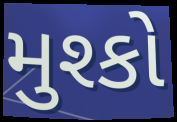
મુશ્કો